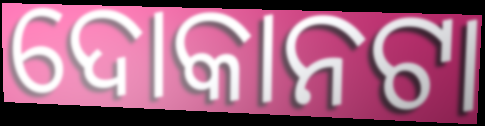
ଦୋକାନଟା